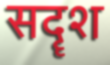
सदॄश